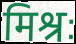
मिश्रः